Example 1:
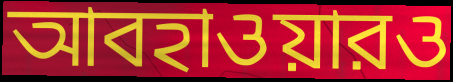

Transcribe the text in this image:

আবহাওয়ারও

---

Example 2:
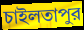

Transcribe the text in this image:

চাইলতাপুর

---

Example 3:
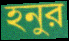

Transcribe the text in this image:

হনুর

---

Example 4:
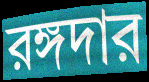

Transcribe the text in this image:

রঙ্গদার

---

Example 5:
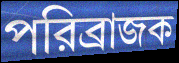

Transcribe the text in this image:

পরিব্রাজক